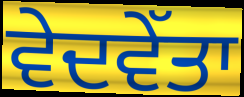
ਵੇਦਵੇੱਤਾ